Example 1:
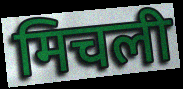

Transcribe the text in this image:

मिचली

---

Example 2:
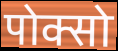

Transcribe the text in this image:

पोक्सो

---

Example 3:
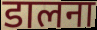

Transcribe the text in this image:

डालना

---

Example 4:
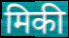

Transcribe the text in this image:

मिकी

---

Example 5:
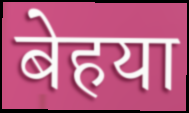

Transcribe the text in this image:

बेहया